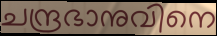
ചന്ദ്രഭാനുവിനെ